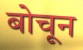
बोचून